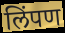
लिंपण